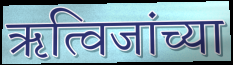
ऋत्विजांच्या